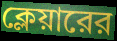
ক্লেয়ারের